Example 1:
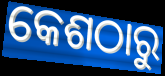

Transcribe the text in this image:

କେଶଠାରୁ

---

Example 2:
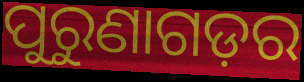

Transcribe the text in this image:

ପୁରୁଣାଗଡ଼ର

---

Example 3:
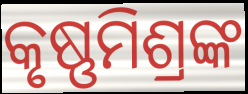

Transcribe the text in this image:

କୃଷ୍ଣମିଶ୍ରଙ୍କ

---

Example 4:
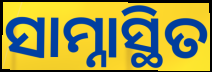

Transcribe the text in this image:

ସାମ୍ନାସ୍ଥିତ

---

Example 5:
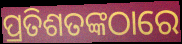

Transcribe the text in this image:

ପ୍ରତିଶତଙ୍କଠାରେ